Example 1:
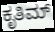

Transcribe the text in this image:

ಕೃತಿಮ್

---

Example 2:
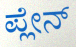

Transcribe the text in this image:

ಪ್ಲೇನ್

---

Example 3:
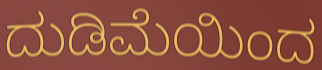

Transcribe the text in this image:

ದುಡಿಮೆಯಿಂದ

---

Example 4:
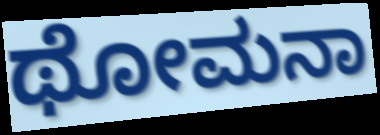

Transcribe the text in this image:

ಥೋಮನಾ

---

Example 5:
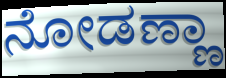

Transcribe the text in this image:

ನೋಡಣ್ಣಾ